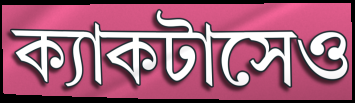
ক্যাকটাসেও